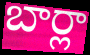
బార్లా